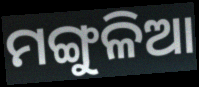
ମଙ୍ଗୁଳିଆ